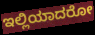
ಇಲ್ಲಿಯಾದರೋ